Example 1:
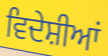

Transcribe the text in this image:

ਵਿਦੇਸ਼ੀਆਂ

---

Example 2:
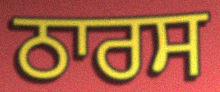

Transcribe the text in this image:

ਠਾਰਸ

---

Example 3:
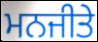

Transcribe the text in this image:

ਮਨਜੀਤੇ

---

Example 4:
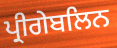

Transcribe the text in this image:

ਪ੍ਰੀਗੇਬਲਿਨ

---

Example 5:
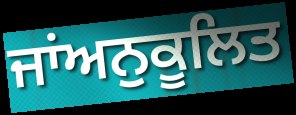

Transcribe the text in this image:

ਜਾਂਅਨੁਕੂਲਿਤ